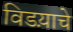
विडय़ाचे